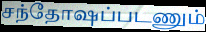
சந்தோஷப்படணும்